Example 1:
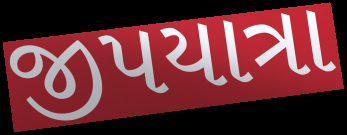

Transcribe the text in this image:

જીપયાત્રા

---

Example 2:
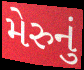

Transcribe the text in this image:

મેરુનું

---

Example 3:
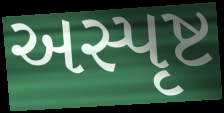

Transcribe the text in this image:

અસ્પૃષ્ટ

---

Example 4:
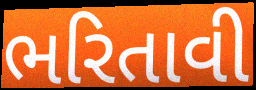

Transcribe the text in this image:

ભરિતાવી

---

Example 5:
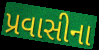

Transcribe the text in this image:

પ્રવાસીના